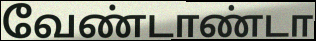
வேண்டாண்டா